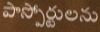
పాస్పోర్టులను